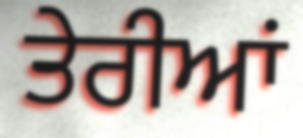
ਤੇਰੀਆਂ